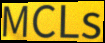
MCLs